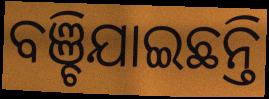
ବଞ୍ଚିଯାଇଛନ୍ତି